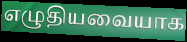
எழுதியவையாக